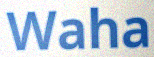
Waha